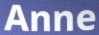
Anne